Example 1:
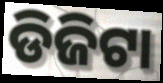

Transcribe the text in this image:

ଡିଜିଟା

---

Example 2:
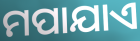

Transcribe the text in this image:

ମପାଯାଏ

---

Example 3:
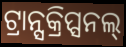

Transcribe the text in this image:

ଟ୍ରାନ୍ସକ୍ରିପ୍ସନଲ୍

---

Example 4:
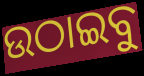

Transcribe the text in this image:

ଉଠାଇବୁ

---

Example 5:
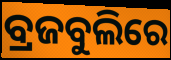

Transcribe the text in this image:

ବ୍ରଜବୁଲିରେ